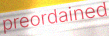
preordained